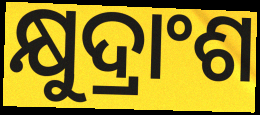
କ୍ଷୁଦ୍ରାଂଶ